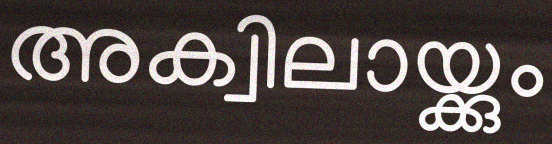
അക്വിലായ്ക്കും